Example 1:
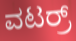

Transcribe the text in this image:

ವಟರ್ರ್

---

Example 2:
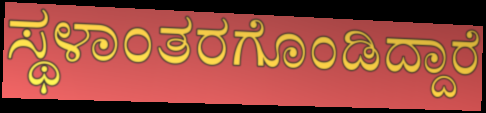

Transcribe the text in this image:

ಸ್ಥಳಾಂತರಗೊಂಡಿದ್ದಾರೆ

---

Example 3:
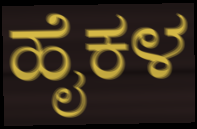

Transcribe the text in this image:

ಹೈಕಳ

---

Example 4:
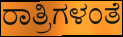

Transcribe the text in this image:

ರಾತ್ರಿಗಳಂತೆ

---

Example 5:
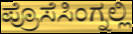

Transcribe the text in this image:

ಪ್ರೊಸೆಸಿಂಗ್ನಲ್ಲಿ